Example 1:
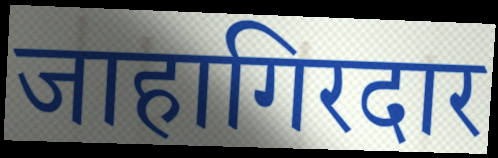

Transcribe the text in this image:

जाहागिरदार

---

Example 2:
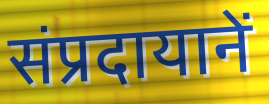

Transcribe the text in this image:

संप्रदायानें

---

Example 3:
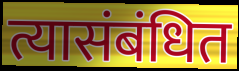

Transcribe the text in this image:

त्यासंबंधित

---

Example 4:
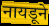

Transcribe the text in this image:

नायडूने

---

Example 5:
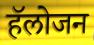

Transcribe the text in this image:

हॅलोजन